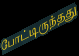
போட்டிருந்தது